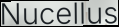
Nucellus